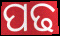
ପଢ